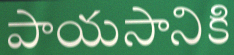
పాయసానికి